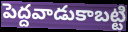
పెద్దవాడుకాబట్టి